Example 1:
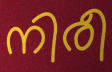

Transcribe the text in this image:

നിരീ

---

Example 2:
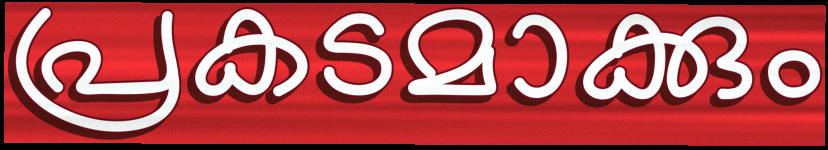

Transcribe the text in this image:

പ്രകടമാക്കും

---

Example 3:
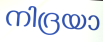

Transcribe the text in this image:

നിദ്രയാ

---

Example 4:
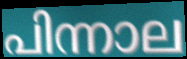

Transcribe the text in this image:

പിന്നാല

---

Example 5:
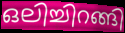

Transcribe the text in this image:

ഒലിച്ചിറങ്ങി